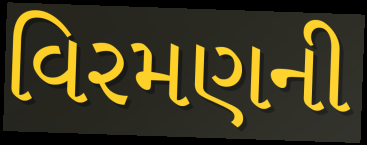
વિરમણની